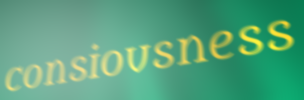
consiousness